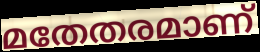
മതേതരമാണ്